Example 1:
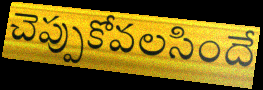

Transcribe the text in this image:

చెప్పుకోవలసిందే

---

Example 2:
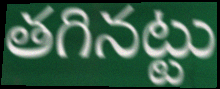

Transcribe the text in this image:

తగినట్టు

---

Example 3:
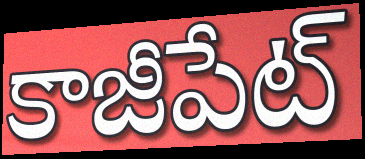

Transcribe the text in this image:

కాజీపేట్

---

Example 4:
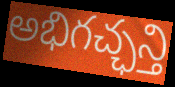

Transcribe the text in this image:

అభిగచ్ఛన్తి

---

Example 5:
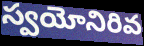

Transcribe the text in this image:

స్వయోనిరివ